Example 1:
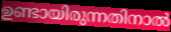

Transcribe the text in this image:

ഉണ്ടായിരുന്നതിനാൽ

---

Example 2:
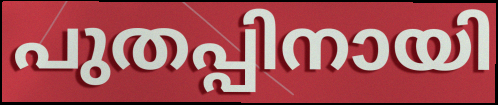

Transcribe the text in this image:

പുതപ്പിനായി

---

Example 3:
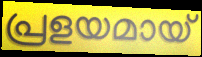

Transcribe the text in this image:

പ്രളയമായ്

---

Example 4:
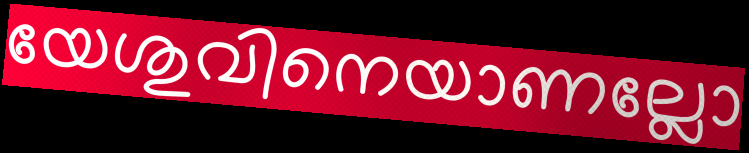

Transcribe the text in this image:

യേശുവിനെയാണല്ലോ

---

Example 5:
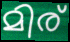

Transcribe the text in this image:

മിര്